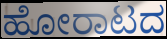
ಹೋರಾಟದ